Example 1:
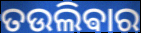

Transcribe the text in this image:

ତଉଲିଵାର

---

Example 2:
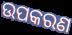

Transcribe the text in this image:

ଉପକରଣ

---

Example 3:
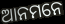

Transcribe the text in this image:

ଆନମନେ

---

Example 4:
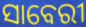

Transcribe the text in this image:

ସାବେରୀ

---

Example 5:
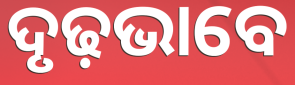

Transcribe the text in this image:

ଦୃଢ଼ଭାବେ